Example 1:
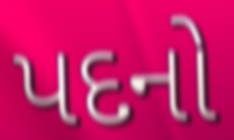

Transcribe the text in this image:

પદનો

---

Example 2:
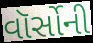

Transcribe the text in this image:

વૉર્સોની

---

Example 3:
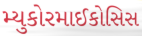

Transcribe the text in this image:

મ્યુકોરમાઈકોસિસ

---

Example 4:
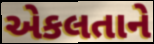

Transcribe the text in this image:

એકલતાને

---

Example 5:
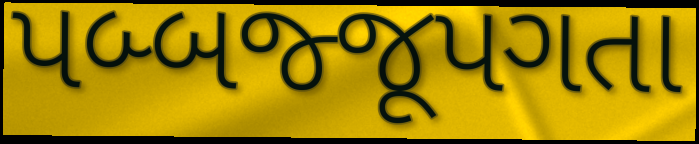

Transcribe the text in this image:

પબ્બજ્જૂપગતા